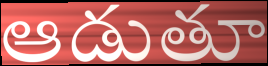
ఆడుతూ